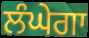
ਲੰਘੇਗਾ